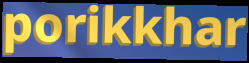
porikkhar